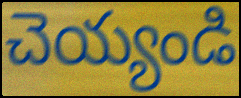
చెయ్యండి